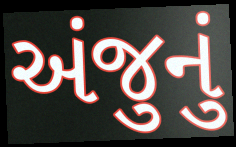
અંજુનું